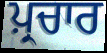
ਪ਼੍ਰਚਾਰ